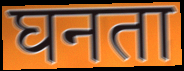
घनता